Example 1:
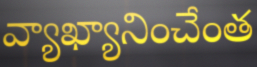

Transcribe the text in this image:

వ్యాఖ్యానించేంత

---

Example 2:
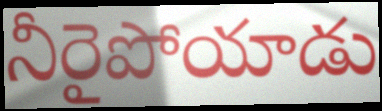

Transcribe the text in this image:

నీరైపోయాడు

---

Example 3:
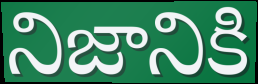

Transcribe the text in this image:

నిజానికి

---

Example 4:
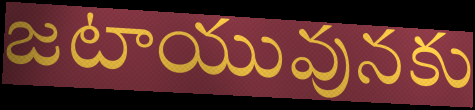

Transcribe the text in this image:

జటాయువునకు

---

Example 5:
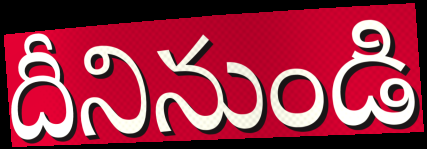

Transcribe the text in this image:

దీనినుండి